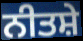
ਨੀਤਸ਼ੇ